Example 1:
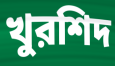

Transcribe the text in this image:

খুরশিদ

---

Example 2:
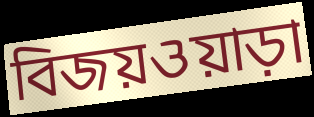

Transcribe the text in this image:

বিজয়ওয়াড়া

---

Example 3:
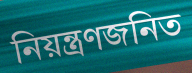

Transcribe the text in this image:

নিয়ন্ত্রণজনিত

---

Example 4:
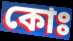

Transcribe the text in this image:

কোঃ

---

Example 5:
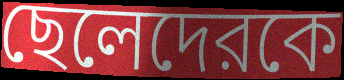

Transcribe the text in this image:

ছেলেদেরকে